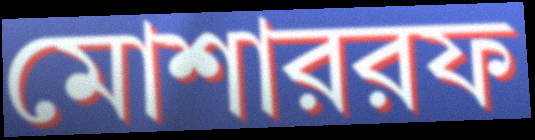
মোশাররফ